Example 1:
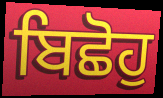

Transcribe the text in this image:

ਬਿਛੋਹੁ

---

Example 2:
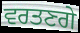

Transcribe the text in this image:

ਵਰਤਣਗੇ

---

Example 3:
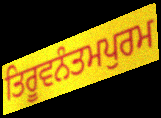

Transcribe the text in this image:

ਤਿਰੂਵਨੰਤਮਪੁਰਮ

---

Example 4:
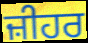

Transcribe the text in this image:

ਜ਼ੀਹਰ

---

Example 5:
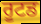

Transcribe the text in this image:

ਰੂਟਡ